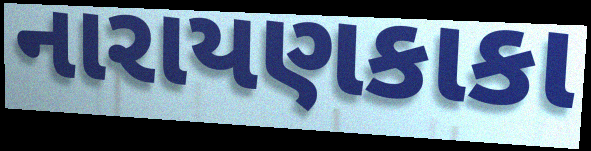
નારાયણકાકા